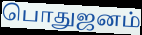
பொதுஜனம்